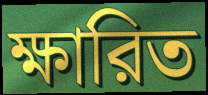
ক্ষারিত